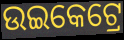
ଉଇକେଟ୍ରେ